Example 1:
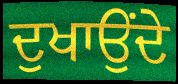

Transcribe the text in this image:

ਦੁਖਾਉਂਦੇ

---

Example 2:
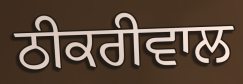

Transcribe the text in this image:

ਠੀਕਰੀਵਾਲ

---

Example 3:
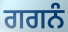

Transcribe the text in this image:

ਗਗਨੰ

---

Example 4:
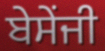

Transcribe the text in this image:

ਬੇਸੇਂਜੀ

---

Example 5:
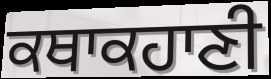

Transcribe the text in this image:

ਕਥਾਕਹਾਣੀ